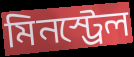
মিনস্ট্রেল